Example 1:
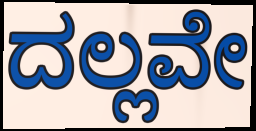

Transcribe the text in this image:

ದಲ್ಲವೇ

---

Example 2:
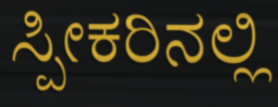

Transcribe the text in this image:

ಸ್ಪೀಕರಿನಲ್ಲಿ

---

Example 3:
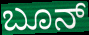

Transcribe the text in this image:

ಬೂನ್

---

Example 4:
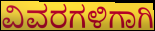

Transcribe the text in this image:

ವಿವರಗಳಿಗಾಗಿ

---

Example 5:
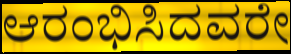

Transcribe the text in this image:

ಆರಂಭಿಸಿದವರೇ